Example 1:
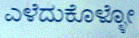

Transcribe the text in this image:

ಎಳೆದುಕೊಳ್ಳೋ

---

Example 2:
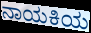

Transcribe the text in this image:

ನಾಯಕಿಯ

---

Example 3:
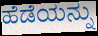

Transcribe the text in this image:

ಹೆಡೆಯನ್ನು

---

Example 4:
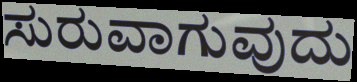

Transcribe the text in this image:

ಸುರುವಾಗುವುದು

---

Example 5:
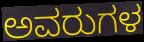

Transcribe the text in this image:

ಅವರುಗಳ